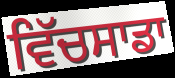
ਵਿੱਚਸਾਡਾ